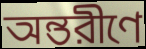
অন্তরীণে